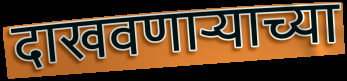
दाखवणाऱ्याच्या